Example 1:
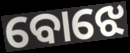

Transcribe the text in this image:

ବୋଝେ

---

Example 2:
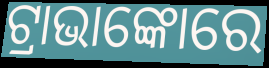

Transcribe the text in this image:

ଟ୍ରାଭାଙ୍କୋରେ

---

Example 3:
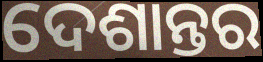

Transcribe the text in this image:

ଦେଶାନ୍ତର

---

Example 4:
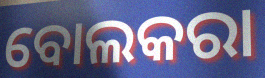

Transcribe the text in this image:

ବୋଲକରା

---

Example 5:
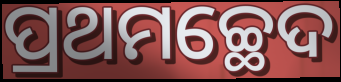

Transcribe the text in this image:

ପ୍ରଥମଚ୍ଛେଦ